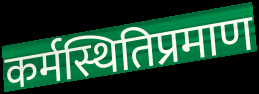
कर्मस्थितिप्रमाण